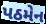
પઠમેન